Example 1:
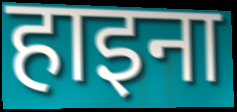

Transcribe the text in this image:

हाइना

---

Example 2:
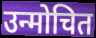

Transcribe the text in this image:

उन्मोचित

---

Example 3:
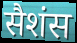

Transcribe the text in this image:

सैशंस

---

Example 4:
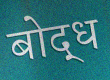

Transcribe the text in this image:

बोद्ध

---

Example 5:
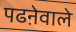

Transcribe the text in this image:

पढऩेवाले